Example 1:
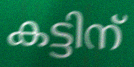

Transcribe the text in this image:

കട്ടിന്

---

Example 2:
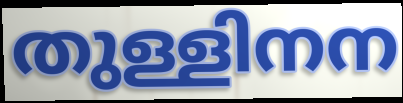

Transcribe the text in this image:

തുള്ളിനന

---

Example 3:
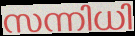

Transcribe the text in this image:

സന്നിധി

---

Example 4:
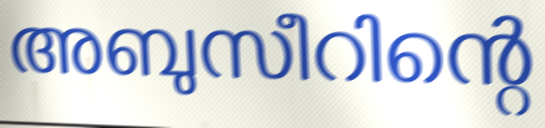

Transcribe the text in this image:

അബുസീറിന്റെ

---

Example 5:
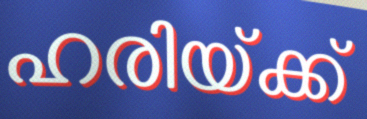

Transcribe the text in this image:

ഹരിയ്‌ക്ക്